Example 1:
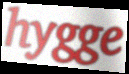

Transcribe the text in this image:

hygge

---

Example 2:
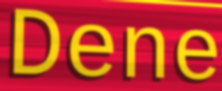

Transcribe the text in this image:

Dene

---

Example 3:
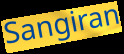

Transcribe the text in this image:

Sangiran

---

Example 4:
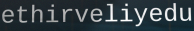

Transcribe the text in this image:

ethirveliyedu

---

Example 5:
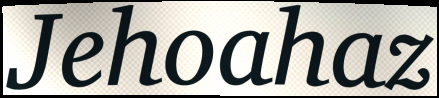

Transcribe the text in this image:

Jehoahaz